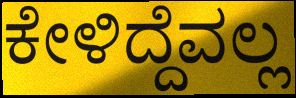
ಕೇಳಿದ್ದೆವಲ್ಲ